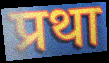
प्रथा